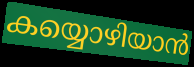
കയ്യൊഴിയാൻ